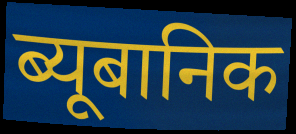
ब्यूबानिक